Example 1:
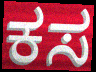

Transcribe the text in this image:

ಕಸ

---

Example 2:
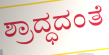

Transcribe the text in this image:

ಶ್ರಾದ್ಧದಂತೆ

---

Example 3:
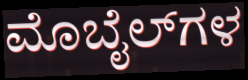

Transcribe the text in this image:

ಮೊಬೈಲ್‌ಗಳ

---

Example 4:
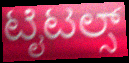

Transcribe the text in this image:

ಟೈಟಲ್ಸ್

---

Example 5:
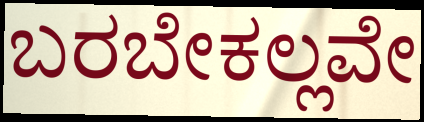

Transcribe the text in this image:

ಬರಬೇಕಲ್ಲವೇ